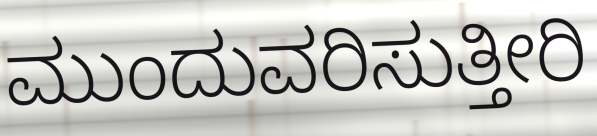
ಮುಂದುವರಿಸುತ್ತೀರಿ